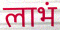
लाभं